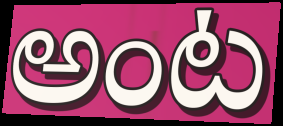
అంట